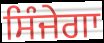
ਸਿੰਜੇਗਾ